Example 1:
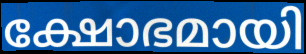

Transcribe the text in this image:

ക്ഷോഭമായി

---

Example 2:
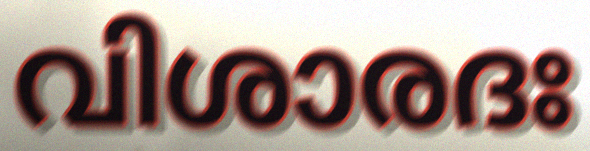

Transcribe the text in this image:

വിശാരദഃ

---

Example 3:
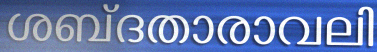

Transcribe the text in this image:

ശബ്‌ദതാരാവലി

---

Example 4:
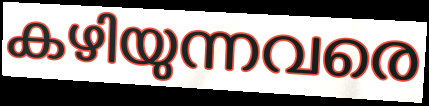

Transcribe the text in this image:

കഴിയുന്നവരെ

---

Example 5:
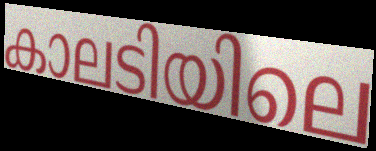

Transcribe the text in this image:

കാലടിയിലെ